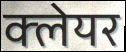
क्‍लेयर